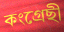
কংগ্ৰেছী